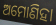
ଅମୋଣିହା